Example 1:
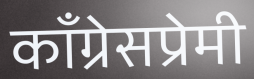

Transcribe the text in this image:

काँग्रेसप्रेमी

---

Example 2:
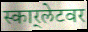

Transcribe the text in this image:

स्कार्लेटवर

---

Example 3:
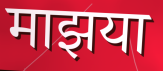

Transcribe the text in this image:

माझया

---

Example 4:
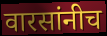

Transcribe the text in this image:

वारसांनीच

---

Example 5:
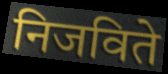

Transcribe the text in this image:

निजविते